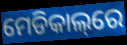
ମେଡିକାଲ୍‌ରେ